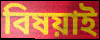
বিষয়াই